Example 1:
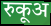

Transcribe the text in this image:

रुकूअ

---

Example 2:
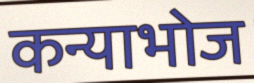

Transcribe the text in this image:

कन्याभोज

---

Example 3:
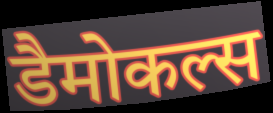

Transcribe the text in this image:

डैमोकल्स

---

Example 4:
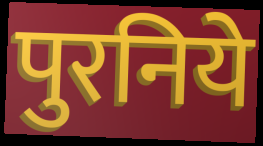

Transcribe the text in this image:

पुरनिये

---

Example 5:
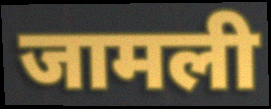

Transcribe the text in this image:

जामली